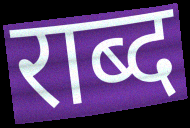
राब्द